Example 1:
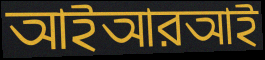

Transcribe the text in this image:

আইআরআই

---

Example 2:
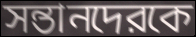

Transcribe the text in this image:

সন্তানদেরকে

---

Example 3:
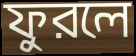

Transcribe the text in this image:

ফুরলে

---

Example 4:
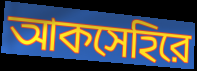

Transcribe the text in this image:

আকসেহিরে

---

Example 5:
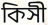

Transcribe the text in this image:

কিসী